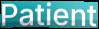
Patient